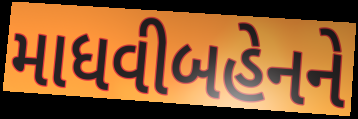
માધવીબહેનને